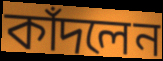
কাঁদলেন